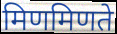
मिणमिणते